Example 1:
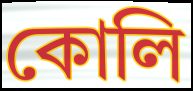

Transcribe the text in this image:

কোলি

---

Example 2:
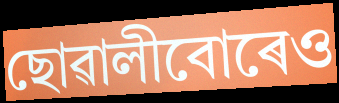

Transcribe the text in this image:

ছোৱালীবোৰেও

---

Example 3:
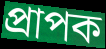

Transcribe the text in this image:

প্ৰাপক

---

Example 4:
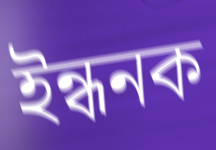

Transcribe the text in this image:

ইন্ধনক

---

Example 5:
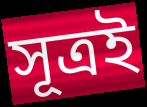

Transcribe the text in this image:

সূত্ৰই